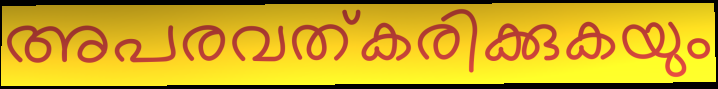
അപരവത്കരിക്കുകയും